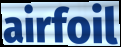
airfoil